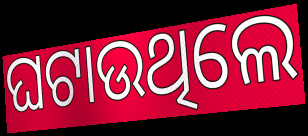
ଘଟାଉଥିଲେ